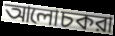
আলোচকরা